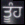
ਤੂੰਹ